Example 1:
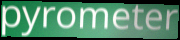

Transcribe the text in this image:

pyrometer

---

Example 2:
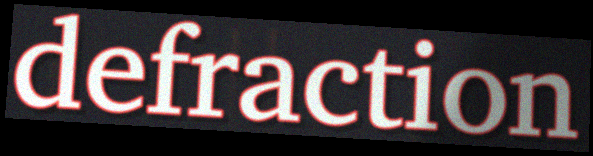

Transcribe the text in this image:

defraction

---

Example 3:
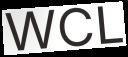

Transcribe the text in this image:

WCL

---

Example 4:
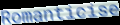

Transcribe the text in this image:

Romanticise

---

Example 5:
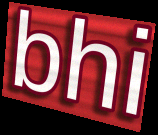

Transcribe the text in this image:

bhi